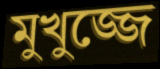
মুখুজ্জে